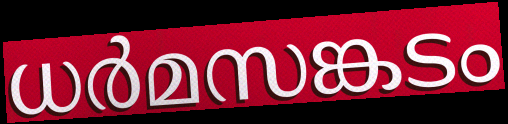
ധർമസങ്കടം